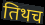
तिथच